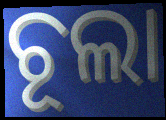
ଚୂଲା